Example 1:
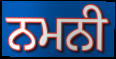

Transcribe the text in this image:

ਨਮਨੀ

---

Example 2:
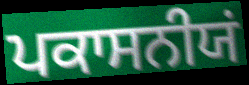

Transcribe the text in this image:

ਪਕਾਸਨੀਯਂ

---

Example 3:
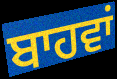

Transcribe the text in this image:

ਬਾਹਵਾਂ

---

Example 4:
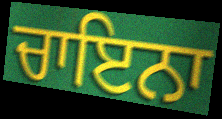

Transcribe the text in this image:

ਚਾਇਨਾ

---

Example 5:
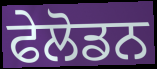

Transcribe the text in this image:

ਫੇਲੋਡਨ